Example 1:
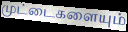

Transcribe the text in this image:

முட்டைகளையும்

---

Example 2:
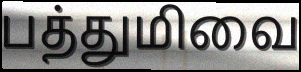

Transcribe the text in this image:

பத்துமிவை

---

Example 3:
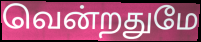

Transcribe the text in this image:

வென்றதுமே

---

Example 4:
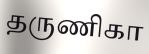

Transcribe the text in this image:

தருணிகா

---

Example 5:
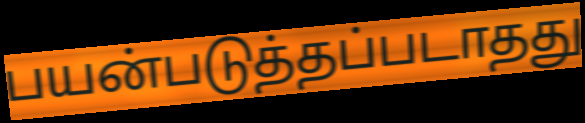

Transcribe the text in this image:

பயன்படுத்தப்படாதது